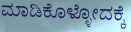
ಮಾಡಿಕೊಳ್ಳೋದಕ್ಕೆ